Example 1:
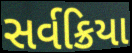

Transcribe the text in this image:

સર્વક્રિયા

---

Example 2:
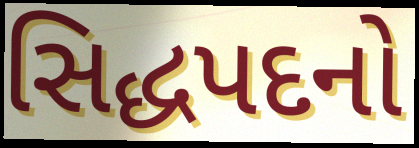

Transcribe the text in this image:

સિદ્ધપદનો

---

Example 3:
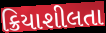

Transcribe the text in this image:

ક્રિયાશીલતા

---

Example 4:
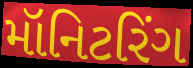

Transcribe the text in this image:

મૉનિટરિંગ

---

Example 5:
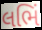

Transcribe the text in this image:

લભિં